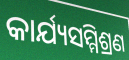
କାର୍ଯ୍ୟସମ୍ମିଶ୍ରଣ